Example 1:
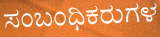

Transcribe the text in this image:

ಸಂಬಂಧಿಕರುಗಳ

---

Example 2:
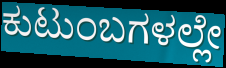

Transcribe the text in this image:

ಕುಟುಂಬಗಳಲ್ಲೇ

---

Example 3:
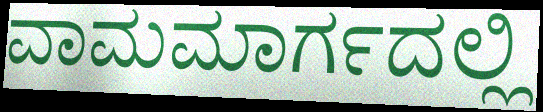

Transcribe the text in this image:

ವಾಮಮಾರ್ಗದಲ್ಲಿ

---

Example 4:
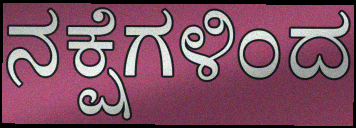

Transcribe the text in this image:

ನಕ್ಷೆಗಳಿಂದ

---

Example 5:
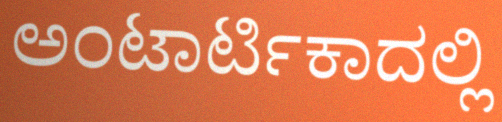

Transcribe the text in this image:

ಅಂಟಾರ್ಟಿಕಾದಲ್ಲಿ